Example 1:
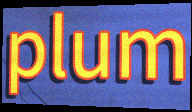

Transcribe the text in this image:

plum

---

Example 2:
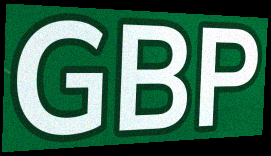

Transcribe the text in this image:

GBP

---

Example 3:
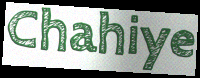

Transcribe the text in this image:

Chahiye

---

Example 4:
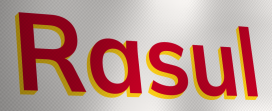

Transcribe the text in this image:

Rasul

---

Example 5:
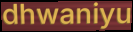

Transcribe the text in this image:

dhwaniyu